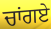
ਚਾਂਗਏ